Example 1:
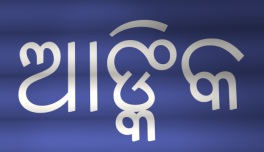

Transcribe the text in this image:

ଆଙ୍କିକ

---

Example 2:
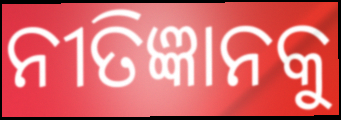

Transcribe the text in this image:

ନୀତିଜ୍ଞାନକୁ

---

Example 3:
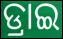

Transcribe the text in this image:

ଡ୍ରାଇ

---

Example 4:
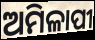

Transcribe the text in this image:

ଅମିଳାପୀ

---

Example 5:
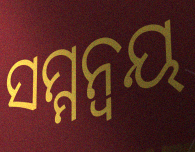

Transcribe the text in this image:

ସମ୍ମନ୍ୱୟ